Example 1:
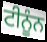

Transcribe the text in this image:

ਟੀਨੂੰਨ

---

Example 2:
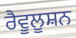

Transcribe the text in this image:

ਰੈਵੂਲੂਸ਼ਨ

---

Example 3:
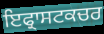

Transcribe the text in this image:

ਇਫ੍ਰਾਸਟਕਚਰ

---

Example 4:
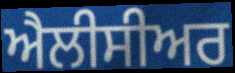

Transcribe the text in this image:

ਐਲੀਸੀਅਰ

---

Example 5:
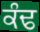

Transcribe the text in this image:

ਕੰਢ